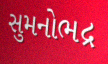
સુમનોભદ્ર